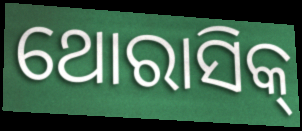
ଥୋରାସିକ୍